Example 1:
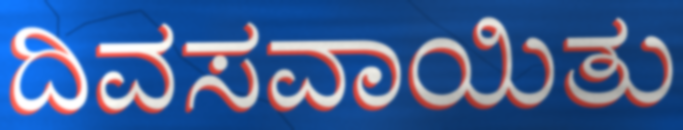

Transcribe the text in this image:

ದಿವಸವಾಯಿತು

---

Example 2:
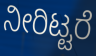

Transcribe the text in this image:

ನೀರಿಟ್ಟರೆ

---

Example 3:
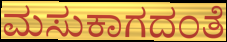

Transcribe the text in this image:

ಮಸುಕಾಗದಂತೆ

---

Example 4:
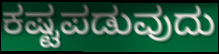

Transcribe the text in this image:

ಕಷ್ಟಪಡುವುದು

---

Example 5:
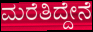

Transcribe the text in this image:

ಮರೆತಿದ್ದೇನೆ